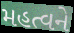
મહત્વને